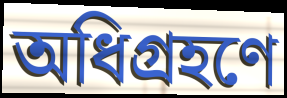
অধিগ্রহণে